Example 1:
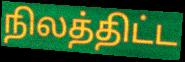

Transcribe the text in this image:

நிலத்திட்ட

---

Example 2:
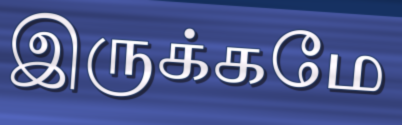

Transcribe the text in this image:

இருக்கமே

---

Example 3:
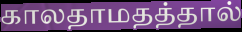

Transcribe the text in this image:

காலதாமதத்தால்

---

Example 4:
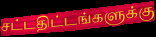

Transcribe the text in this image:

சட்டதிட்டங்களுக்கு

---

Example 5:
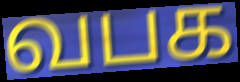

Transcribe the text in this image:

வபக